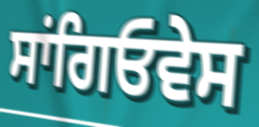
ਸਾਂਗਿਓਵੇਸ